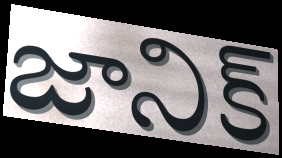
జానిక్